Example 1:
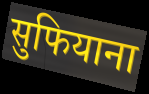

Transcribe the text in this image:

सुफियाना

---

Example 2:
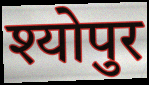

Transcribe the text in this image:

श्‍योपुर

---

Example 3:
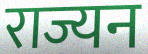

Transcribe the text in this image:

राज्यन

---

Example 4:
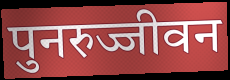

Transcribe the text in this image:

पुनरुज्जीवन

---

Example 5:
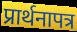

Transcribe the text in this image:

प्रार्थनापत्र